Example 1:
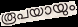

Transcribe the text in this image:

രൂപയായും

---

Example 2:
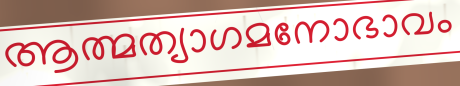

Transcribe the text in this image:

ആത്മത്യാഗമനോഭാവം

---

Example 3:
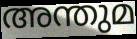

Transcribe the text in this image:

അന്തുമ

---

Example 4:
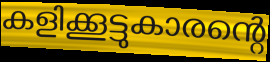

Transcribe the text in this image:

കളിക്കൂട്ടുകാരന്റെ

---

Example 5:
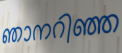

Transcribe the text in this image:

ഞാനറിഞ്ഞ